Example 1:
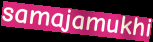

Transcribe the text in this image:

samajamukhi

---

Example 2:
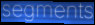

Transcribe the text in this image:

segments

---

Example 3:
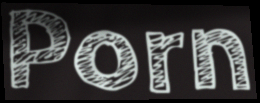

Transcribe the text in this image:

Porn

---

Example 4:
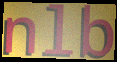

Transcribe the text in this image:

nlb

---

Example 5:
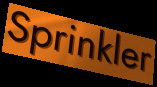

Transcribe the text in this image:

Sprinkler